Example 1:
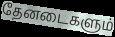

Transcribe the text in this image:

தேனடைகளும்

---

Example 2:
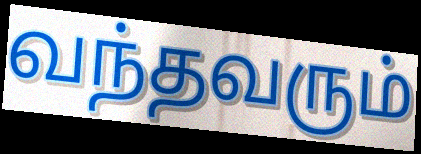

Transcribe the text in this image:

வந்தவரும்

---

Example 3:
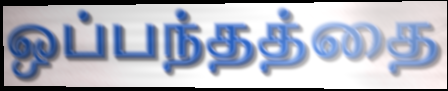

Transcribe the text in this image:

ஒப்பந்தத்தை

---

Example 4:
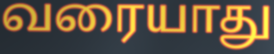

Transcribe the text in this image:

வரையாது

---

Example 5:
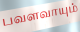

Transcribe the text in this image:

பவளவாயும்